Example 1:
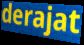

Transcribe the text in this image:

derajat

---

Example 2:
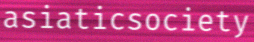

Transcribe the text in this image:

asiaticsociety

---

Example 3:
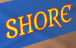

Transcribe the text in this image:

SHORE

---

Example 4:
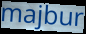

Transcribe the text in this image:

majbur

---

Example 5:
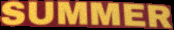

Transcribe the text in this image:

SUMMER